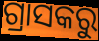
ଗ୍ରାସକରୁ